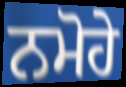
ਨਮੋਹੇ